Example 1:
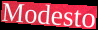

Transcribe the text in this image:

Modesto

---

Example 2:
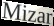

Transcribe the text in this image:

Mizar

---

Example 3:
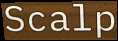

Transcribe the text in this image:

Scalp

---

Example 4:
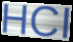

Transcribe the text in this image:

HCI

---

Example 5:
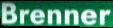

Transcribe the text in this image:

Brenner